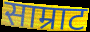
साम्राट